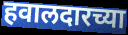
हवालदारच्या